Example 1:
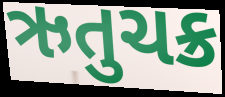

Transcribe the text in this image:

ઋતુચક્ર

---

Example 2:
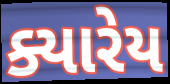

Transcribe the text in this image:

ક્યારેય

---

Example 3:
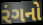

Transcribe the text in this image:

રંગનો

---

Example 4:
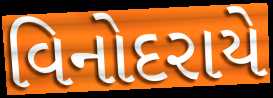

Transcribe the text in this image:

વિનોદરાયે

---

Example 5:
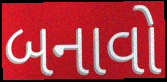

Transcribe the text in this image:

બનાવો